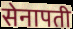
सेनापती